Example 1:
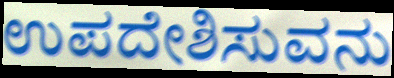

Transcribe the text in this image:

ಉಪದೇಶಿಸುವನು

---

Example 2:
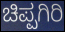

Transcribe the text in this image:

ಚಿಪ್ಪಗಿರಿ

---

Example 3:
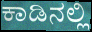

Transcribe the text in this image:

ಕಾಡಿನಲ್ಲಿ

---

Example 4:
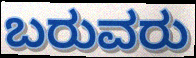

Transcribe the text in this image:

ಬರುವರು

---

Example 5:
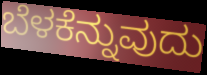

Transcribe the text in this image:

ಬೆಳಕೆನ್ನುವುದು